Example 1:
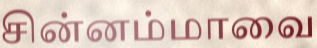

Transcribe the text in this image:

சின்னம்மாவை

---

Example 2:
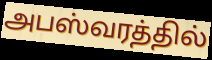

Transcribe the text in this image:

அபஸ்வரத்தில்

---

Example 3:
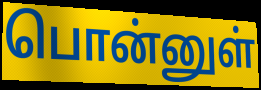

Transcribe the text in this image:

பொன்னுள்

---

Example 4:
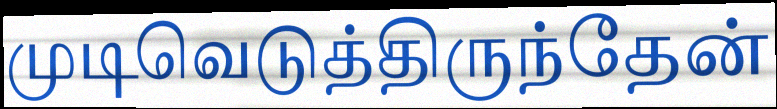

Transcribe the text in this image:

முடிவெடுத்திருந்தேன்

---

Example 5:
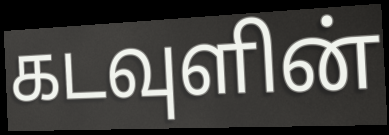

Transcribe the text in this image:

கடவுளின்